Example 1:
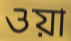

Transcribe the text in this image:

ওয়া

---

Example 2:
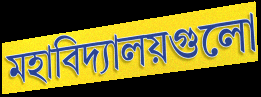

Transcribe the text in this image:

মহাবিদ্যালয়গুলো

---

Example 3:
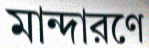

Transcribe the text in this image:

মান্দারণে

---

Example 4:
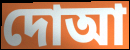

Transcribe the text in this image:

দোআ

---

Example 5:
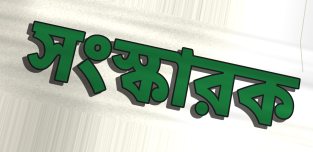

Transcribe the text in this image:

সংস্কারক